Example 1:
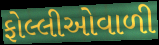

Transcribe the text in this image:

ફોલ્લીઓવાળી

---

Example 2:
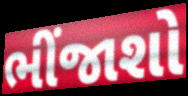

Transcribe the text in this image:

ભીંજાશો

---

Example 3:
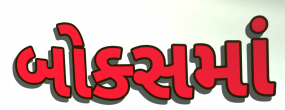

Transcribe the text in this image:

બોક્સમાં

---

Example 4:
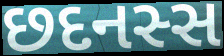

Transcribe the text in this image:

છદનસ્સ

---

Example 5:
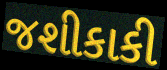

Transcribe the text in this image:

જશીકાકી